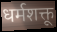
धर्मशक्तू